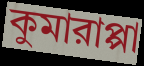
কুমারাপ্পা